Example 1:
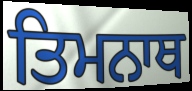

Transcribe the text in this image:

ਤਿਮਨਾਥ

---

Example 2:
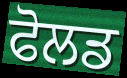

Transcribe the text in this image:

ਫੋਲਡ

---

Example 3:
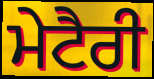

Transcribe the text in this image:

ਮੇਟੈਰੀ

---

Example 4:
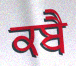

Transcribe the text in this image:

ਕਬੈ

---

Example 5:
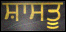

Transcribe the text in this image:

ਸ਼ਾਸਤੂ